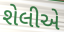
શેલીએ